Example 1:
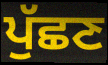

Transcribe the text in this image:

ਪੁੱਛਣ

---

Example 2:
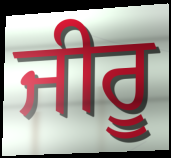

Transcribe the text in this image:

ਜੀਰੂ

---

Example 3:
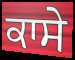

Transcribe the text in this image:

ਕਾਸੇ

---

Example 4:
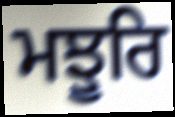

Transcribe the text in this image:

ਮਝੂਰਿ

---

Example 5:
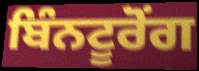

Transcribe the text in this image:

ਬਿੰਨਟੂਰੋਂਗ